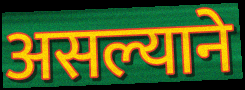
असल्याने